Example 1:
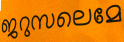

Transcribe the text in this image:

ജറുസലെമേ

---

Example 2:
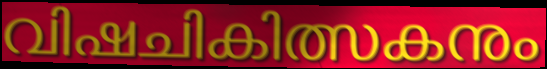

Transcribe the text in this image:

വിഷചികിത്സകനും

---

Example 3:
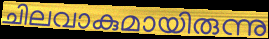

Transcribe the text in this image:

ചിലവാകുമായിരുന്നു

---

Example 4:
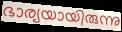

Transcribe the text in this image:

ഭാര്യയായിരുന്നു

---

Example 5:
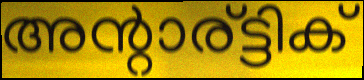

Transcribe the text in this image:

അന്റാര്ട്ടിക്